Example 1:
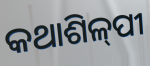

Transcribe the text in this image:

କଥାଶିଳ୍‌ପୀ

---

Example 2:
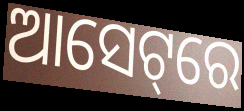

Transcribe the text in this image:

ଆସେଟ୍‌ରେ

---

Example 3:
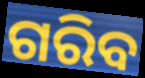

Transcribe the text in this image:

ଗରିବ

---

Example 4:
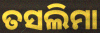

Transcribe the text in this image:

ତସଲିମା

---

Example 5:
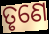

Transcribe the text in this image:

ତୃଣେ